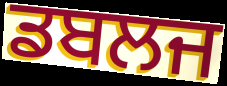
ਡਬਲਜ